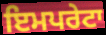
ਇਮਪਰੇਟਾ